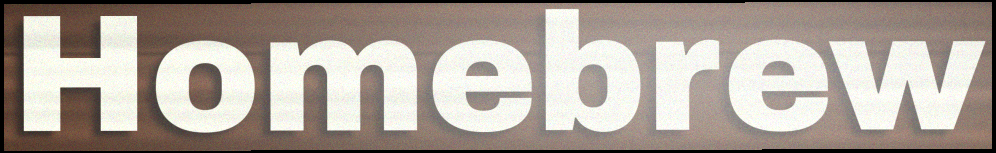
Homebrew